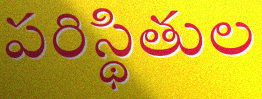
పరిస్థితుల